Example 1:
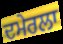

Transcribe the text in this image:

ਦਮੇਰਲਾ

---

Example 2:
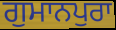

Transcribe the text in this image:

ਗੁਮਾਨਪੁਰਾ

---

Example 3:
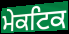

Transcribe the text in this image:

ਮੇਕਟਿਕ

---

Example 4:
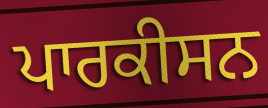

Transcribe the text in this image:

ਪਾਰਕੀਸਨ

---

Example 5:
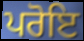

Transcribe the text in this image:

ਪਰੋਇ